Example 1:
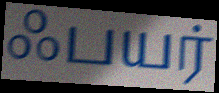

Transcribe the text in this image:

ஃபயர்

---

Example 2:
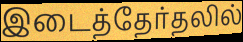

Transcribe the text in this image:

இடைத்தேர்தலில்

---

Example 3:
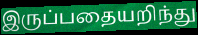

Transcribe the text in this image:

இருப்பதையறிந்து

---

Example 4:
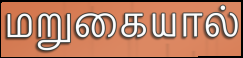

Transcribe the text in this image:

மறுகையால்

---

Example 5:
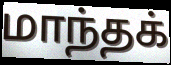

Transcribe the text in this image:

மாந்தக்